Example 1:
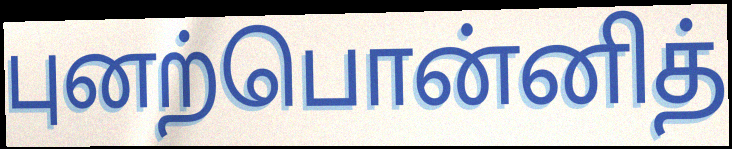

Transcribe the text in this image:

புனற்பொன்னித்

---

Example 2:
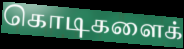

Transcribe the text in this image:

கொடிகளைக்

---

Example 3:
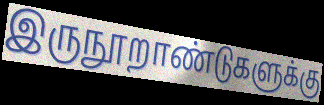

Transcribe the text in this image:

இருநூறாண்டுகளுக்கு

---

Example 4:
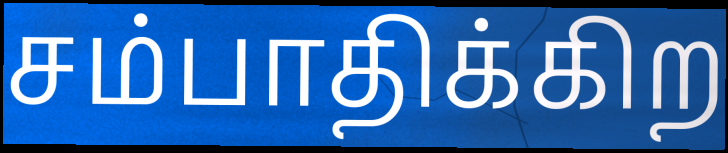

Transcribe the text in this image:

சம்பாதிக்கிற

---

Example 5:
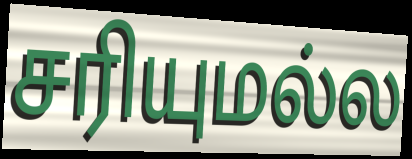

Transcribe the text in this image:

சரியுமல்ல